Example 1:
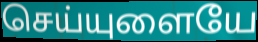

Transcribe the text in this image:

செய்யுளையே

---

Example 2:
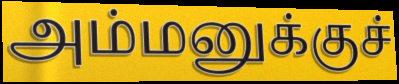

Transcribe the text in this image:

அம்மனுக்குச்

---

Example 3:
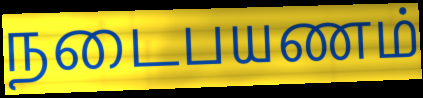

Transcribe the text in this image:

நடைபயணம்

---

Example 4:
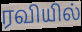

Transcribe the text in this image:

ரவியில்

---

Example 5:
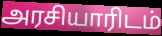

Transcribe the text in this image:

அரசியாரிடம்